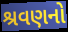
શ્રવણનો